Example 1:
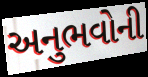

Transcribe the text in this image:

અનુભવોની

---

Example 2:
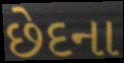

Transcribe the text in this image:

છેદના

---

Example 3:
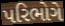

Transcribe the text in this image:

પરિભોગે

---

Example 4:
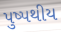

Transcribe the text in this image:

પુષ્પથીય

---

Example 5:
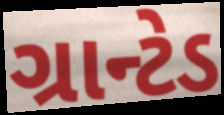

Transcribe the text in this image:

ગ્રાન્ટેડ